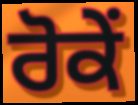
ਰੋਕੇਂ